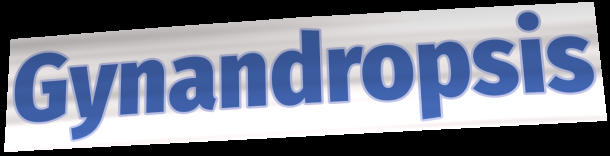
Gynandropsis